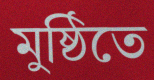
মুষ্ঠিতে